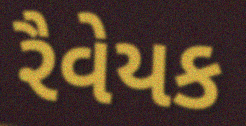
રૈવેયક